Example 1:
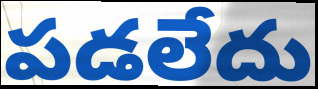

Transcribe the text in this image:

పడలేదు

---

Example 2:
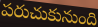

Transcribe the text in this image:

పరుచుకునుంది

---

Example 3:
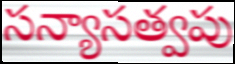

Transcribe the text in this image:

సన్యాసత్వపు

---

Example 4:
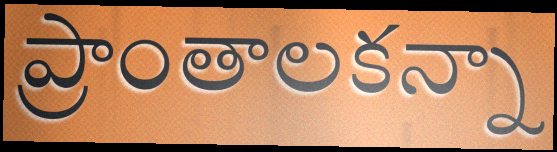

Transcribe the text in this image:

ప్రాంతాలకన్నా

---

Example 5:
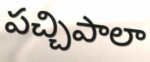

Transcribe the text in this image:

పచ్చిపాలా